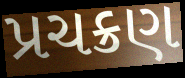
પ્રચક્રણ